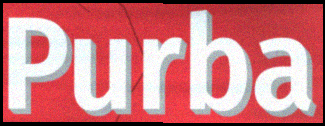
Purba